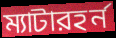
ম্যাটারহর্ন